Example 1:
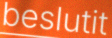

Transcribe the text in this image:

beslutit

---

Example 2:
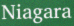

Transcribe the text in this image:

Niagara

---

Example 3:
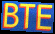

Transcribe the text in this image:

BTE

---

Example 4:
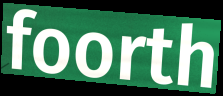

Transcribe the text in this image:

foorth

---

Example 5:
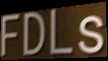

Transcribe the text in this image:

FDLs